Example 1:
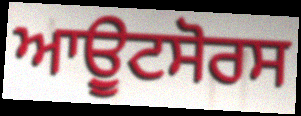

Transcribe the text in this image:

ਆਉੂਟਸੋਰਸ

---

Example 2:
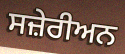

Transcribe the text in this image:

ਸਜ਼ੇਰੀਅਨ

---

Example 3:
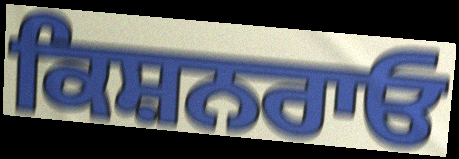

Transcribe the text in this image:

ਕਿਸ਼ਨਰਾਓ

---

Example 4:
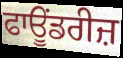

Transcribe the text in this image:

ਫਾਊਂਡਰੀਜ਼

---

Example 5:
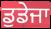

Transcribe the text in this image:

ਡੁਡੇਜਾ